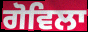
ਗੋਵਿਲਾ